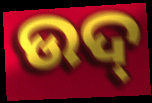
ଉଦ୍